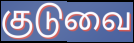
குடுவை